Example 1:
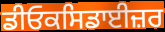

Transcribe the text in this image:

ਡੀਓਕਸਿਡਾਈਜ਼ਰ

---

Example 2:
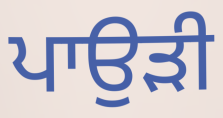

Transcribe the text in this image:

ਪਾਉੜੀ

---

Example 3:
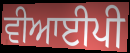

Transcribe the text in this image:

ਵੀਆਈਪੀ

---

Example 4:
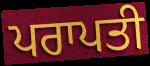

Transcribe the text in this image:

ਪਰਾਪਤੀ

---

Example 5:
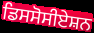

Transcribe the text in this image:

ਡਿਸਸੋਸੀਏਸ਼ਨ